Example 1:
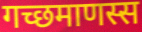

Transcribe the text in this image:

गच्छमाणस्स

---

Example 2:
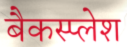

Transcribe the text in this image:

बैकस्प्लेश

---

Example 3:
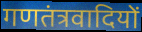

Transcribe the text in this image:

गणतंत्रवादियों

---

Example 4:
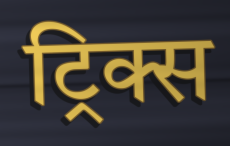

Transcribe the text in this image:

ट्रिक्स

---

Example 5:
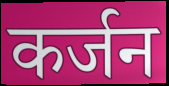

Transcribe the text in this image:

कर्जन